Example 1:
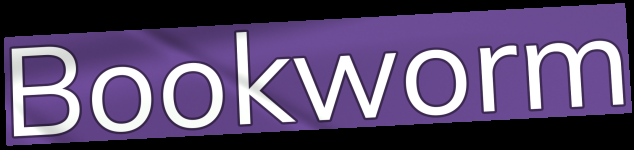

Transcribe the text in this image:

Bookworm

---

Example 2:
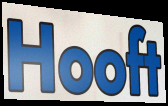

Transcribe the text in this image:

Hooft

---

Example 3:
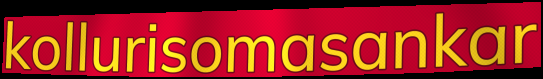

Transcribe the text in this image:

kollurisomasankar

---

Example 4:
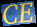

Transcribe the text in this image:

CE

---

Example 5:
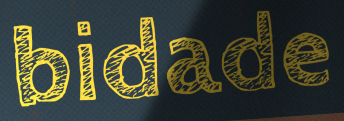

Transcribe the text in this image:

bidade